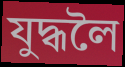
যুদ্ধলৈ